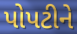
પોપટીને